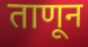
ताणून